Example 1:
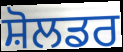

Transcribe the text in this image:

ਸ਼ੋਲਡਰ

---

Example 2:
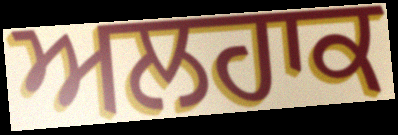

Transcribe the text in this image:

ਅਲਹਾਕ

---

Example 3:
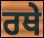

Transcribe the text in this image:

ਰਥੇ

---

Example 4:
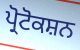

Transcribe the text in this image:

ਪ੍ਰੋਟੋਕਸ਼ਨ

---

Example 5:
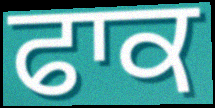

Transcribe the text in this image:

ਫਾਕ